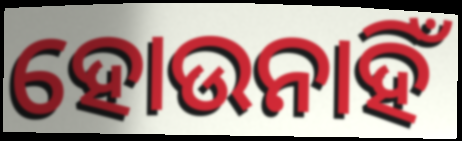
ହୋଉନାହିଁ